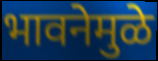
भावनेमुळे